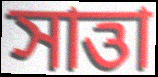
সাত্তা